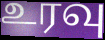
உரவு